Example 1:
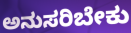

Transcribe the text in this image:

ಅನುಸರಿಬೇಕು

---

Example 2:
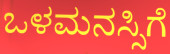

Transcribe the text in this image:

ಒಳಮನಸ್ಸಿಗೆ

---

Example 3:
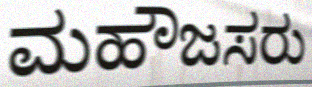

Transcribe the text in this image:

ಮಹೌಜಸರು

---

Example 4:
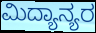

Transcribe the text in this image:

ಮಿದ್ಯಾನ್ಯರ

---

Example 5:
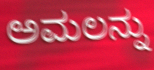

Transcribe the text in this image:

ಅಮಲನ್ನು